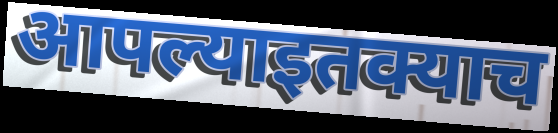
आपल्याइतक्याच